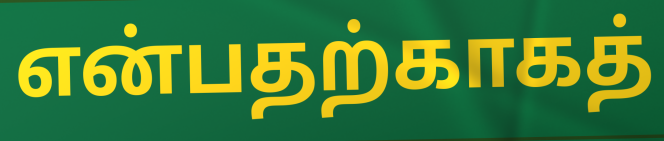
என்பதற்காகத்